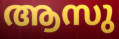
ആസു